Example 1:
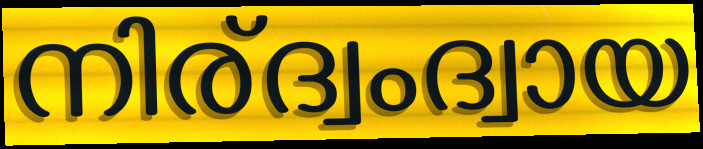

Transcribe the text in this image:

നിര്ദ്വംദ്വായ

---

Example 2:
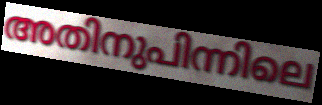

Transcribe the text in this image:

അതിനുപിന്നിലെ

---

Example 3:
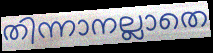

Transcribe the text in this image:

തിന്നാനല്ലാതെ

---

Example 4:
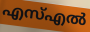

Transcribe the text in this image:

എസ്എൽ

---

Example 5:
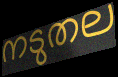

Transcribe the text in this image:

നടുതല